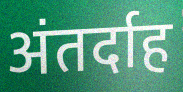
अंतर्दाह